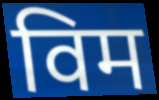
विम